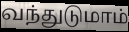
வந்துடுமாம்